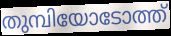
തുമ്പിയോടോത്ത്